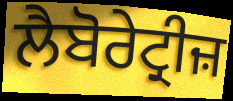
ਲੈਬੋਰੇਟ੍ਰੀਜ਼